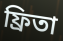
ফ্রিতা